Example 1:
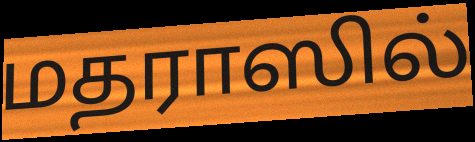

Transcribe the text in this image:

மதராஸில்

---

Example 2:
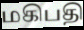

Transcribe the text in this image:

மகிபதி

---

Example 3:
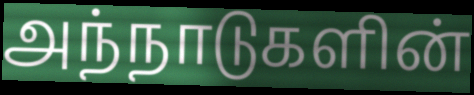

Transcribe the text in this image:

அந்நாடுகளின்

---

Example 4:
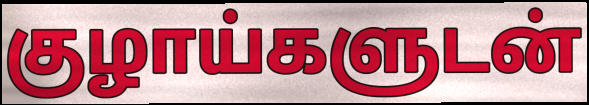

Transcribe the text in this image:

குழாய்களுடன்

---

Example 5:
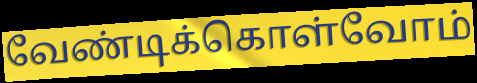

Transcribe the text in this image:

வேண்டிக்கொள்வோம்